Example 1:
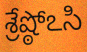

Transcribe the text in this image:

శ్రేష్ఠోఽసి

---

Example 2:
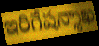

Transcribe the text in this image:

ఇరిగేషన్శాఖ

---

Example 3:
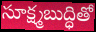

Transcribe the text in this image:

సూక్ష్మబుద్ధితో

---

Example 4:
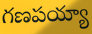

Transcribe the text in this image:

గణపయ్యా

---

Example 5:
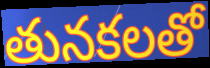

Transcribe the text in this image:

తునకలతో